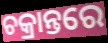
ଚକ୍ରାନ୍ତରେ